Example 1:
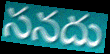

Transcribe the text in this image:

సనదు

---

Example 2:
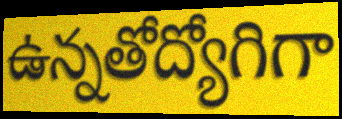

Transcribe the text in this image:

ఉన్నతోద్యోగిగా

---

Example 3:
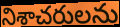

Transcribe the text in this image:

నిశాచరులను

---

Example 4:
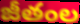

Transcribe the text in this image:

జీతంల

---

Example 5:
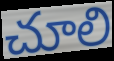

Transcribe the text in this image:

చూలి